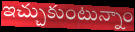
ఇచ్చుకుంటున్నాం